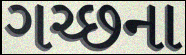
ગચ્છના